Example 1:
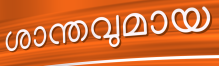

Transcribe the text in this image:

ശാന്തവുമായ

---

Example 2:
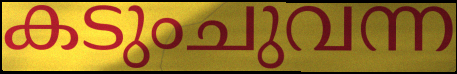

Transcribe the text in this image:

കടുംചുവന്ന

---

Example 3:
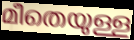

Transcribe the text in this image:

മീതെയുള്ള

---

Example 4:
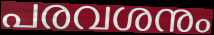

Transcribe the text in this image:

പരവശനും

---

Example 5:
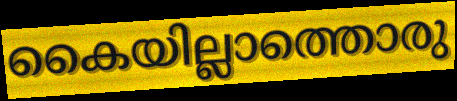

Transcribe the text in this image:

കൈയില്ലാത്തൊരു